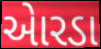
એારડા